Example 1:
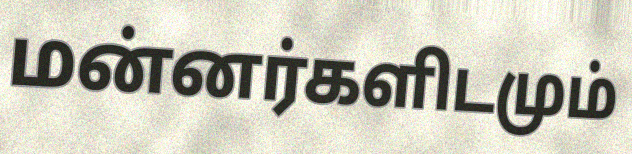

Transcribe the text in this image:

மன்னர்களிடமும்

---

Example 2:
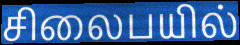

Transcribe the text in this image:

சிலைபயில்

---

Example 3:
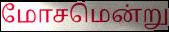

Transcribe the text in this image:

மோசமென்று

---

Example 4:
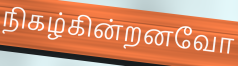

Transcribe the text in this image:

நிகழ்கின்றனவோ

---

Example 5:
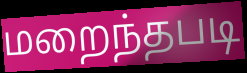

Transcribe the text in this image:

மறைந்தபடி